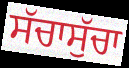
ਸੱਚਾਸੁੱਚਾ